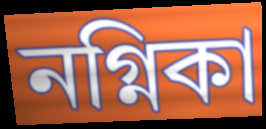
নগ্নিকা